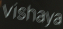
vishaya